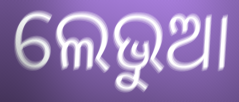
ଲେଭୁଆ